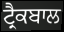
ਟ੍ਰੈਕਬਾਲ